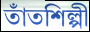
তাঁতশিল্পী